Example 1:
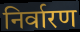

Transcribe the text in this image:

निर्वारण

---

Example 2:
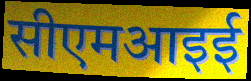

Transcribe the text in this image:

सीएमआइई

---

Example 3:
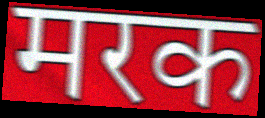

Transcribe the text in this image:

मरक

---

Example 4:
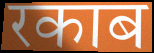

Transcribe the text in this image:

रकाब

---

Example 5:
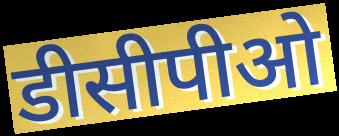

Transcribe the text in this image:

डीसीपीओ